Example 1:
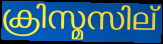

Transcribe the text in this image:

ക്രിസ്മസില്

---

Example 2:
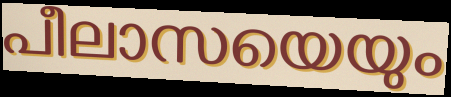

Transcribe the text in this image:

പീലാസയെയും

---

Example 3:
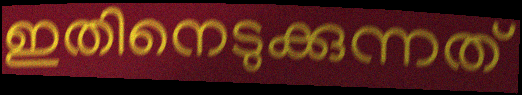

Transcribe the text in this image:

ഇതിനെടുക്കുന്നത്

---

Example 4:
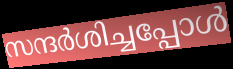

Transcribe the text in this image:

സന്ദർശിച്ചപ്പോൾ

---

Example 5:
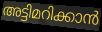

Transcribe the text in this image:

അട്ടിമറിക്കാൻ